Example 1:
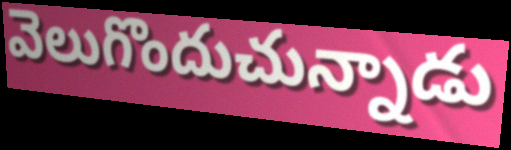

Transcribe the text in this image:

వెలుగొందుచున్నాడు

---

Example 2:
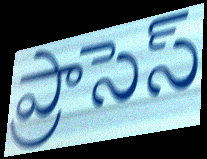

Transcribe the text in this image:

ప్రాసెస్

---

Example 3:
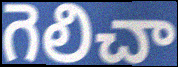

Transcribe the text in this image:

గెలిచా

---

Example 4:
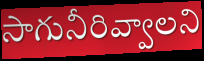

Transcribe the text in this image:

సాగునీరివ్వాలని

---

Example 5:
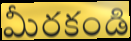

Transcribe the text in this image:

మీరకండి